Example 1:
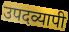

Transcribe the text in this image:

उपदव्यापी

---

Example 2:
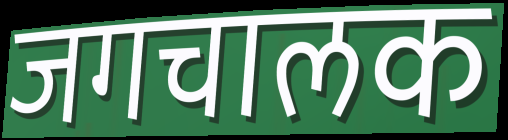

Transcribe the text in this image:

जगचालक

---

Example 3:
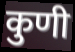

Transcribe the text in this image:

कुणी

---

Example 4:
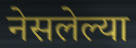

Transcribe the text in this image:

नेसलेल्या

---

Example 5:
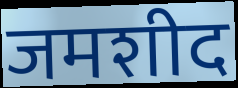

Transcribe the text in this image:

जमशीद